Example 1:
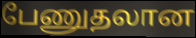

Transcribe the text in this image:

பேணுதலான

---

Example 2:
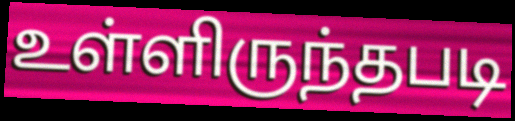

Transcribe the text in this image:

உள்ளிருந்தபடி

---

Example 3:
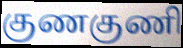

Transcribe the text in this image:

குணகுணி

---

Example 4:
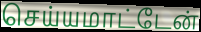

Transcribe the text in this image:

செய்யமாட்டேன்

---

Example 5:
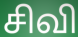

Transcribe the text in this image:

சிவி